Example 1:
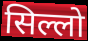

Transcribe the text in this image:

सिल्लो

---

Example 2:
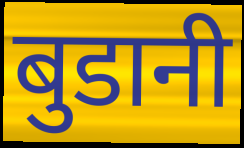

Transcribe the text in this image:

बुडानी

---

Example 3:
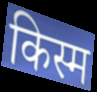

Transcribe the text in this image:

किस्म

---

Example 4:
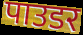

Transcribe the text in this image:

पाउडर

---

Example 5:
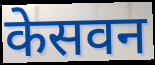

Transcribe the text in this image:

केसवन